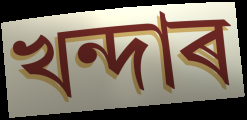
খন্দাৰ